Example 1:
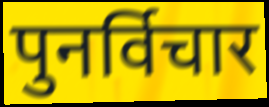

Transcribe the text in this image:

पुनर्विचार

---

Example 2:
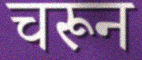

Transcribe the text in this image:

चरून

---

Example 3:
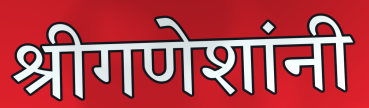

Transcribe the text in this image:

श्रीगणेशांनी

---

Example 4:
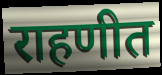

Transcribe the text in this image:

राहणीत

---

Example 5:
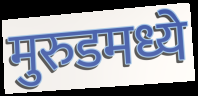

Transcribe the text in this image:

मुरुडमध्ये